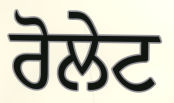
ਰੋਲੇਟ